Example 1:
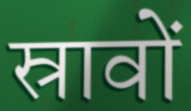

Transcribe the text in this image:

स्रावों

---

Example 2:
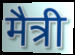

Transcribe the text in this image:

मैत्री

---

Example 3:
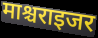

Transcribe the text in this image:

माश्चराइजर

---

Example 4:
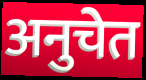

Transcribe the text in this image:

अनुचेत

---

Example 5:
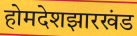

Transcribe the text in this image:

होमदेशझारखंड